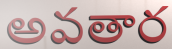
అవతార